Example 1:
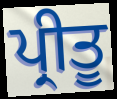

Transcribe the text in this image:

ਪ੍ਰੀਤੂ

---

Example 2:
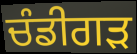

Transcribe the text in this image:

ਚੰਡੀਗਡ਼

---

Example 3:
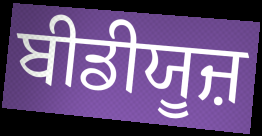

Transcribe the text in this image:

ਬੀਡੀਯੂਜ਼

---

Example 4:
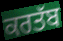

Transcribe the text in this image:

ਕਰਤੱਬ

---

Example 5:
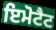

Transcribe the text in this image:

ਇਮੋਟੈਟ